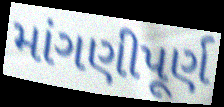
માંગણીપૂર્ણ